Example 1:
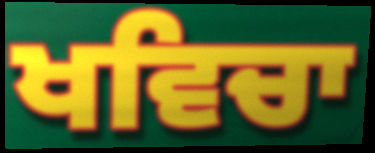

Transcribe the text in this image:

ਖਵਿਚਾ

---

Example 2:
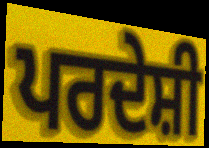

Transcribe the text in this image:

ਪਰਦੇਸ਼ੀ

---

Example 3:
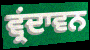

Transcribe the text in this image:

ਵ੍ਰਂਦਾਵਨ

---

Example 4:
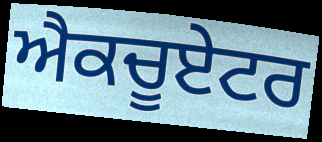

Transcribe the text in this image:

ਐਕਚੂਏਟਰ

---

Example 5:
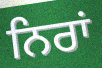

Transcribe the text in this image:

ਨਿਰਾਂ